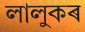
লালুকৰ